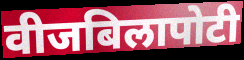
वीजबिलापोटी